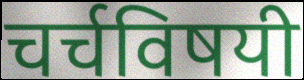
चर्चविषयी